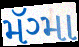
મૅગ્મા